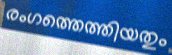
രംഗത്തെത്തിയതും